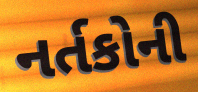
નર્તકોની